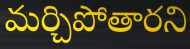
మర్చిపోతారని